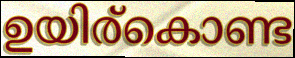
ഉയിര്കൊണ്ട